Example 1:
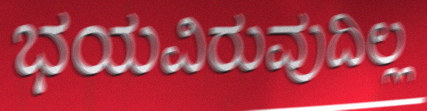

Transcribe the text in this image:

ಭಯವಿರುವುದಿಲ್ಲ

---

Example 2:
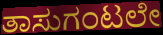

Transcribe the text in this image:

ತಾಸುಗಂಟಲೇ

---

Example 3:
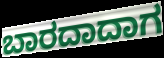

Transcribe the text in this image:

ಬಾರದಾದಾಗ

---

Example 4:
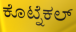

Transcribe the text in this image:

ಕೊಟ್ನೆಕಲ್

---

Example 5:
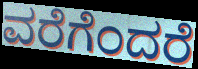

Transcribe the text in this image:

ವರೆಗೆಂದರೆ